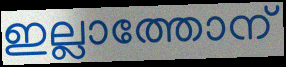
ഇല്ലാത്തോന്